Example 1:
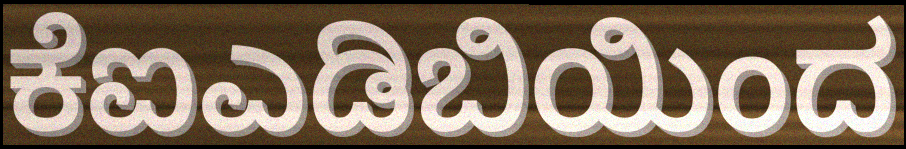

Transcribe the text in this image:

ಕೆಐಎಡಿಬಿಯಿಂದ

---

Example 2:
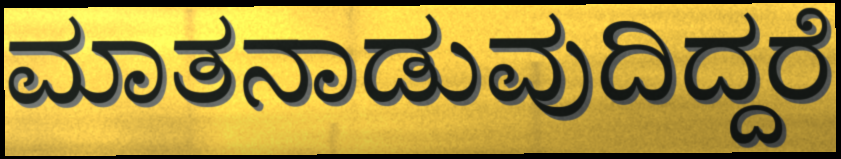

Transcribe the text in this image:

ಮಾತನಾಡುವುದಿದ್ದರೆ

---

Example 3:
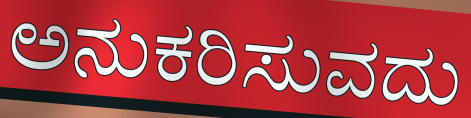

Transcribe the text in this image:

ಅನುಕರಿಸುವದು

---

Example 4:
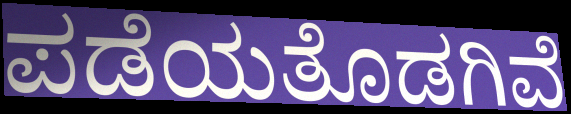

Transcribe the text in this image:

ಪಡೆಯತೊಡಗಿವೆ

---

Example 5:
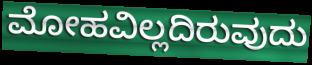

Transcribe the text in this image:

ಮೋಹವಿಲ್ಲದಿರುವುದು